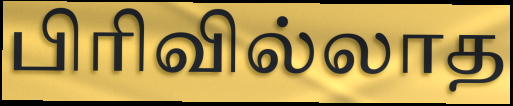
பிரிவில்லாத